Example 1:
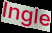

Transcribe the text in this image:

Ingle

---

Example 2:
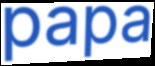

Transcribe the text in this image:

papa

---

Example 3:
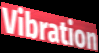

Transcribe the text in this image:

Vibration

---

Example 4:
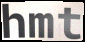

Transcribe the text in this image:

hmt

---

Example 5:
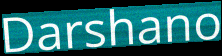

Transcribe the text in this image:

Darshano